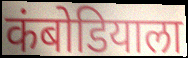
कंबोडियाला